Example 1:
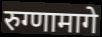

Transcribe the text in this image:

रुग्णामागे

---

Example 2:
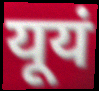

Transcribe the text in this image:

यूयं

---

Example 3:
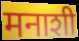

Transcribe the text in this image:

मनाशी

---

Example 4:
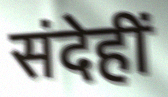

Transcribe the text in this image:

संदेहीं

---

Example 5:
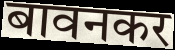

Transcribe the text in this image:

बावनकर